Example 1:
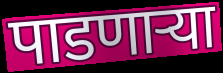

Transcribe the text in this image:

पाडणाऱ्या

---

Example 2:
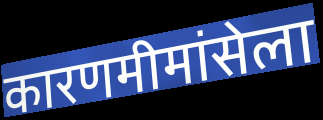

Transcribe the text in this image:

कारणमीमांसेला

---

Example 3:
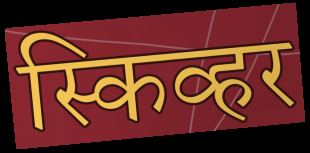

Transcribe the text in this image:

स्किव्हर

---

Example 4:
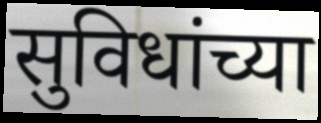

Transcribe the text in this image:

सुविधांच्या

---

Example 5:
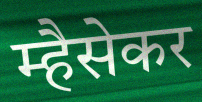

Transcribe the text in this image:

म्हैसेकर